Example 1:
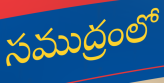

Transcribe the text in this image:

సముద్రంలో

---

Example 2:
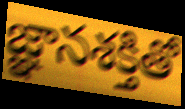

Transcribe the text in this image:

జ్ఞానశక్తితో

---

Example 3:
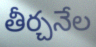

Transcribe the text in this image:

తీర్చనేల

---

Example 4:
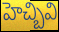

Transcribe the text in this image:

హెచ్బివి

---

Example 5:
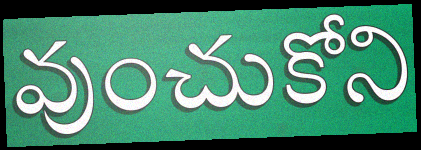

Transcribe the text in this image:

వుంచుకోని